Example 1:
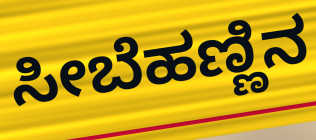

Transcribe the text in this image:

ಸೀಬೆಹಣ್ಣಿನ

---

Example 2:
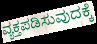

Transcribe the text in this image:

ವ್ಯಕ್ತಪಡಿಸುವುದಕ್ಕೆ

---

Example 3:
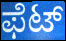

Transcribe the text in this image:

ಫೆಟ್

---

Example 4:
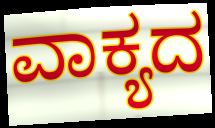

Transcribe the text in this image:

ವಾಕ್ಯದ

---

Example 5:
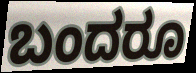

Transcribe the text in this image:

ಬಂದರೂ